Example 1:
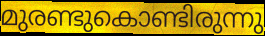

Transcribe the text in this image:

മുരണ്ടുകൊണ്ടിരുന്നു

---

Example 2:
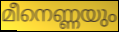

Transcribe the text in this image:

മീനെണ്ണയും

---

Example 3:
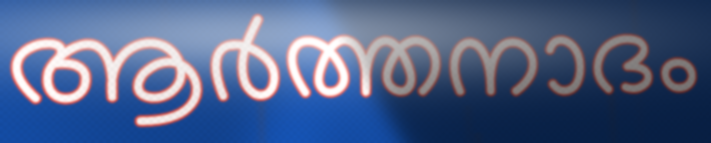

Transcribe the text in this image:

ആർത്തനാദം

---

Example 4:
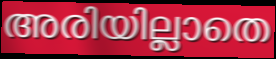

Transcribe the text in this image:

അരിയില്ലാതെ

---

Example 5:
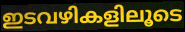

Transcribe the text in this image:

ഇടവഴികളിലൂടെ